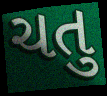
ચતુ